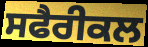
ਸਫੈਰੀਕਲ